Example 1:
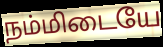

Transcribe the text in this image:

நம்மிடையே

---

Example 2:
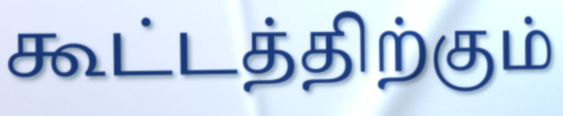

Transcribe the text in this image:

கூட்டத்திற்கும்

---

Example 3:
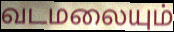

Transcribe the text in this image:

வடமலையும்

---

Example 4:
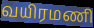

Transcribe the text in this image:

வயிரமணி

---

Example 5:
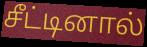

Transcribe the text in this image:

சீட்டினால்